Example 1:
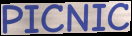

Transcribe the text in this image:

PICNIC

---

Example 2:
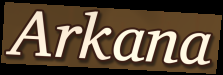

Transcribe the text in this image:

Arkana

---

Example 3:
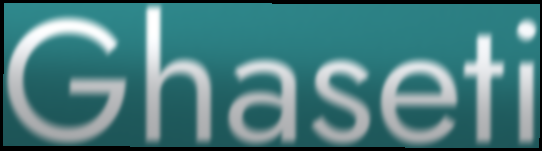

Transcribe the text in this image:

Ghaseti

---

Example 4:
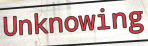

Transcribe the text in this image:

Unknowing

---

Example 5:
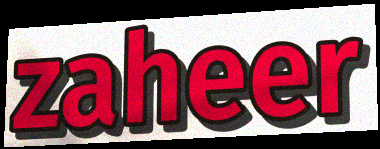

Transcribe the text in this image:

zaheer